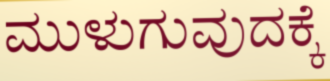
ಮುಳುಗುವುದಕ್ಕೆ